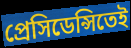
প্রেসিডেন্সিতেই